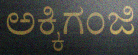
ಅಕ್ಕಿಗಂಜಿ